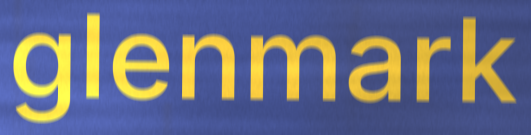
glenmark